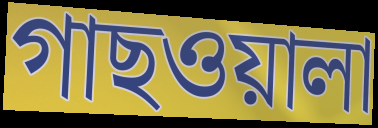
গাছওয়ালা